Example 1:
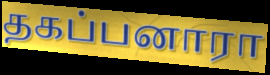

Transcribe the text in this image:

தகப்பனாரா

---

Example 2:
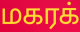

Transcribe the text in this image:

மகரக்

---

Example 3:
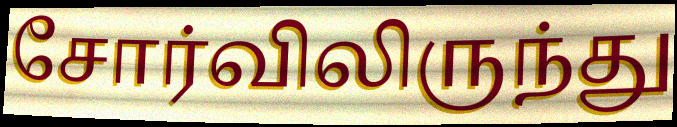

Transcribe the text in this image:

சோர்விலிருந்து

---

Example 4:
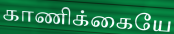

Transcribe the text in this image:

காணிக்கையே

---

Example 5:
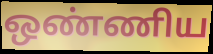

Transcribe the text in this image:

ஒண்ணிய